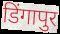
डिंगापुर